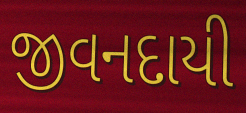
જીવનદાયી